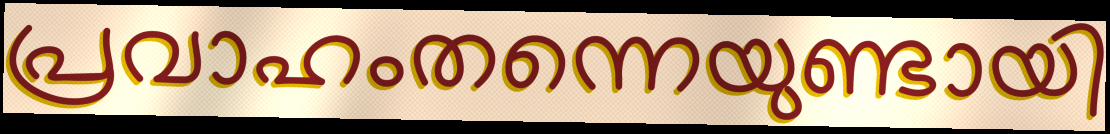
പ്രവാഹംതന്നെയുണ്ടായി